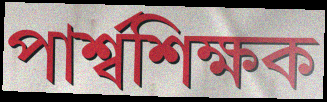
পার্শ্বশিক্ষক